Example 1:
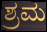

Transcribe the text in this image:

ಶ್ರಮ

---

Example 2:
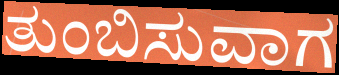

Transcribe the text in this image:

ತುಂಬಿಸುವಾಗ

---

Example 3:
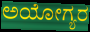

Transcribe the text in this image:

ಅಯೋಗ್ಯರ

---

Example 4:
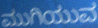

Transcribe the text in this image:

ಮುಗಿಯುವ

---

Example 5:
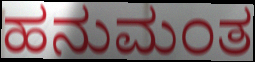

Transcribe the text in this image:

ಹನುಮಂತ